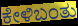
ಕೇಳಿಬಂತು